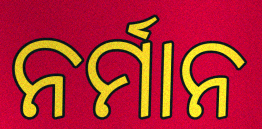
ନର୍ମାନ